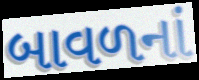
બાવળનાં